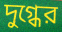
দুগ্ধের